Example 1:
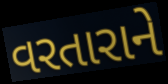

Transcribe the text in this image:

વરતારાને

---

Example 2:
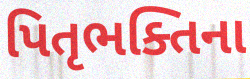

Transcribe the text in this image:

પિતૃભક્તિના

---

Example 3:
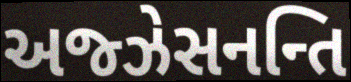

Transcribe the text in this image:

અજ્ઝેસનન્તિ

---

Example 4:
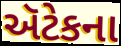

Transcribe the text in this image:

ઍટેકના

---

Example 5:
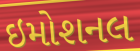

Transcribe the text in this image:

ઇમોશનલ